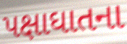
પક્ષાઘાતના